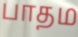
பாதம